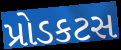
પ્રોડકટસ